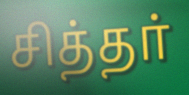
சித்தர்